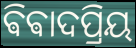
ଵିଵାଦପ୍ରିୟ